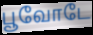
பூவோடே